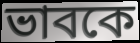
ভাবকে